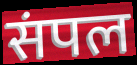
संपल